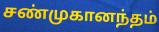
சண்முகானந்தம்